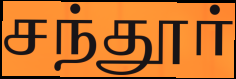
சந்தூர்